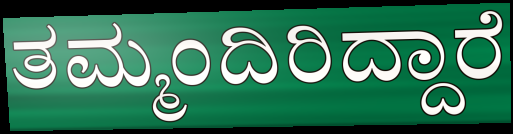
ತಮ್ಮಂದಿರಿದ್ದಾರೆ